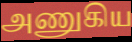
அணுகிய